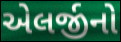
એલર્જીનો